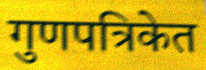
गुणपत्रिकेत